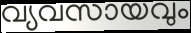
വ്യവസായവും